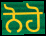
ਨੋਹੋ